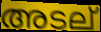
അടല്